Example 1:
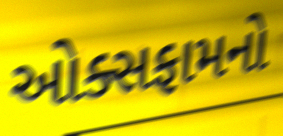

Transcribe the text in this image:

ઓક્સફામનો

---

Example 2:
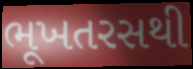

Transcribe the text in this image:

ભૂખતરસથી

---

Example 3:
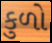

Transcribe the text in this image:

કુળો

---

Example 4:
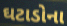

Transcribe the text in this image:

ઘટાડોના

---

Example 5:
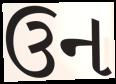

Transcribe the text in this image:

ઉન